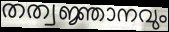
തത്വജ്ഞാനവും